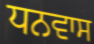
ਧਨਵਾਸ